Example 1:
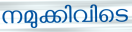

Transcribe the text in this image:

നമുക്കിവിടെ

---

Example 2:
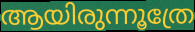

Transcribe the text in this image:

ആയിരുന്നൂത്രേ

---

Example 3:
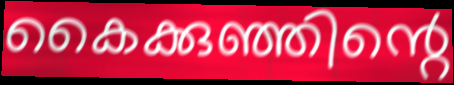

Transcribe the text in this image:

കൈക്കുഞ്ഞിന്റെ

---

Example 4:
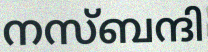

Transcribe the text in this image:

നസ്ബന്ദി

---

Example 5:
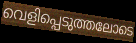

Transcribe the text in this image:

വെളിപ്പെടുത്തലോടെ